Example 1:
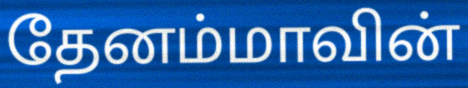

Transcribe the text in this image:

தேனம்மாவின்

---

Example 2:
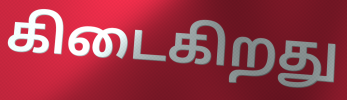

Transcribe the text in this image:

கிடைகிறது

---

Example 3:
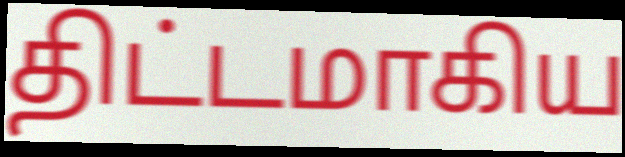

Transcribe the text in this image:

திட்டமாகிய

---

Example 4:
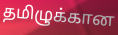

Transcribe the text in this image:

தமிழுக்கான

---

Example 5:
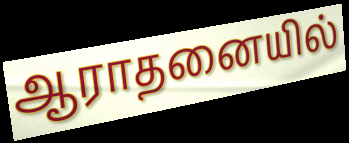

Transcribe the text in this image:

ஆராதனையில்